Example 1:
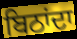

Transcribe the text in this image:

ਬਿਠਾਂਦਾ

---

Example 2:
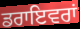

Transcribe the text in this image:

ਡਰਾਇਵਰਾਂ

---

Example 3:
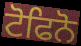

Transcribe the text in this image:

ਟੋਫਿਨੋ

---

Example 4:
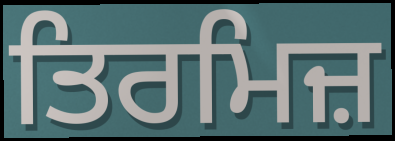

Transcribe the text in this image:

ਤਿਰਮਿਜ਼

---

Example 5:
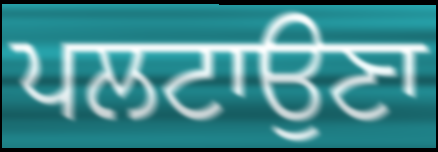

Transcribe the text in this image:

ਪਲਟਾਉਣਾ